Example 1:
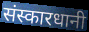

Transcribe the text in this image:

संस्कारधानी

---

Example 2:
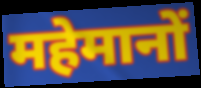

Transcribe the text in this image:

महेमानों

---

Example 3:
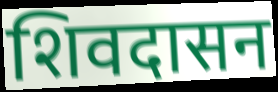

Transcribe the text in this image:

शिवदासन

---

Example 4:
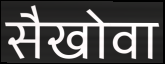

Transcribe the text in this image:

सैखोवा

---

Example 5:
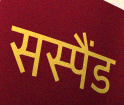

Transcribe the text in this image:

सस्पैंड